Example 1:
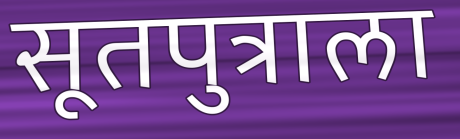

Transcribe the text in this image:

सूतपुत्राला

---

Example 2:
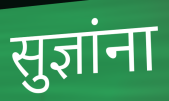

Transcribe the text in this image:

सुज्ञांना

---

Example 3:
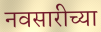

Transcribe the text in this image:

नवसारीच्या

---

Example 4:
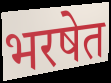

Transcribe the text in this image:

भरषेत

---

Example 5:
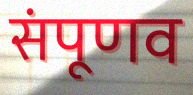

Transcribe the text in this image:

संपूणव